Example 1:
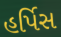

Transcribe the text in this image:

હર્પિસ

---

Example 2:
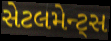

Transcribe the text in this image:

સેટલમેન્ટ્સ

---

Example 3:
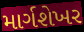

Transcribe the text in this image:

માર્ગશેખર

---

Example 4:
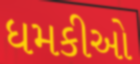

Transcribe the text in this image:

ધમકીઓ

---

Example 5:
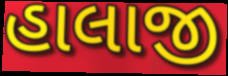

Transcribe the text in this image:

હાલાજી